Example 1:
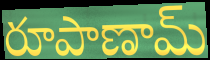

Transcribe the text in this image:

రూపాణామ్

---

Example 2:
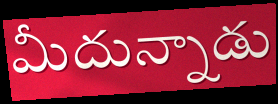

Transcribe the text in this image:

మీదున్నాడు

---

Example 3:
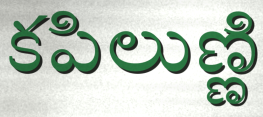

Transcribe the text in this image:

కపిలుణ్ణి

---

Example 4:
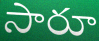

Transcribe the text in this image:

సారూ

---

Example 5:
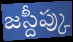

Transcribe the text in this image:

జస్దీప్కు